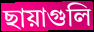
ছায়াগুলি